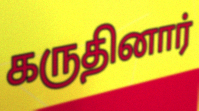
கருதினார்